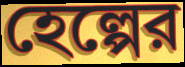
হেল্পের